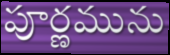
పూర్ణమును